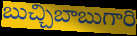
బుచ్చిబాబుగారి